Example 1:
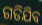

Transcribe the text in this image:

ଗଡିଯିବ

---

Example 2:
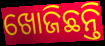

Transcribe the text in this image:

ଖୋଜିଛନ୍ତି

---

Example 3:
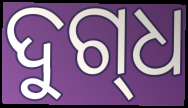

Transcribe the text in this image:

ଦୁଗ୍‌ଧ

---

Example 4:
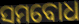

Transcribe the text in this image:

ସମବୋଧ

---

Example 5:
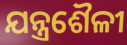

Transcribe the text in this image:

ଯନ୍ତ୍ରଶୈଳୀ